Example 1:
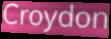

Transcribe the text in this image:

Croydon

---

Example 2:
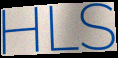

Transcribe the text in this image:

HLS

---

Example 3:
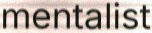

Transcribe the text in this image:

mentalist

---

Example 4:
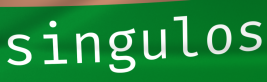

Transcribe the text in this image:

singulos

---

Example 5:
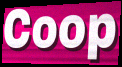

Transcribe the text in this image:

Coop